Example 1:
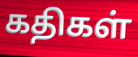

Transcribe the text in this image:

கதிகள்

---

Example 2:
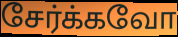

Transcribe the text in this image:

சேர்க்கவோ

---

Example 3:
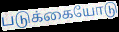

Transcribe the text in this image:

படுக்கையோடு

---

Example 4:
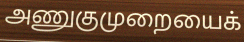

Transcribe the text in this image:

அணுகுமுறையைக்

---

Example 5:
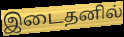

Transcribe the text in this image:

இடைதனில்